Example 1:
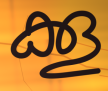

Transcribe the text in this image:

ക്കൂ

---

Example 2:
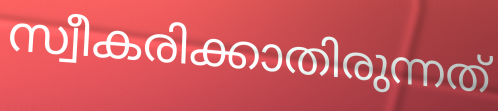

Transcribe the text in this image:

സ്വീകരിക്കാതിരുന്നത്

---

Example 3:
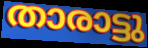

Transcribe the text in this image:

താരാട്ടു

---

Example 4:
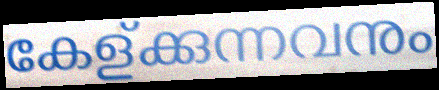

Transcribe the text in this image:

കേള്ക്കുന്നവനും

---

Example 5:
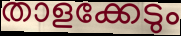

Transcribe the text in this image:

താളക്കേടും